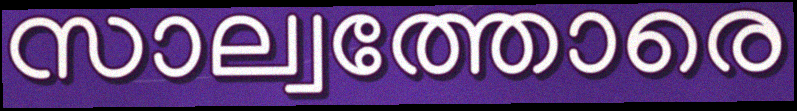
സാല്വത്തോരെ